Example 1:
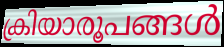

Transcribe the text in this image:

ക്രിയാരൂപങ്ങൾ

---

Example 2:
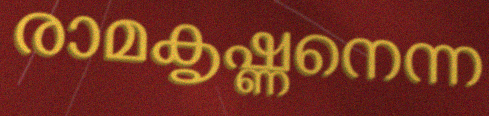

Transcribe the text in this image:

രാമകൃഷ്ണനെന്ന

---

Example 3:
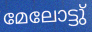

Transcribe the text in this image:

മേലോട്ടു്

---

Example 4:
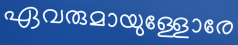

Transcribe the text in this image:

ഏവരുമായുള്ളോരേ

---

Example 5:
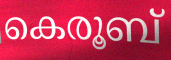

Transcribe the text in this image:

കെരൂബ്